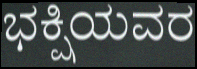
ಭಕ್ಷಿಯವರ